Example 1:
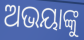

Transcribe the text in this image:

ଅଭୟାଙ୍କୁ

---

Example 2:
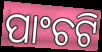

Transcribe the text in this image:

ପାଂଚଟି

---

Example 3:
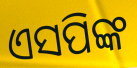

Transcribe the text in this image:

ଏସପିଙ୍କ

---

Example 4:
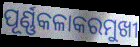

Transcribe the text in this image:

ପୂର୍ଣ୍ଣକଳାକରମୁଖୀ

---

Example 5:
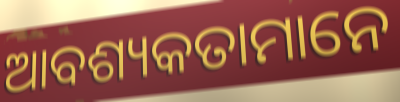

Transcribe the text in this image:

ଆବଶ୍ୟକତାମାନେ